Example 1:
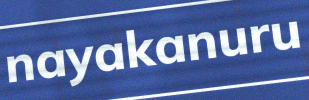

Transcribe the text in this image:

nayakanuru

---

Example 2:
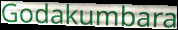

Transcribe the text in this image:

Godakumbara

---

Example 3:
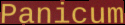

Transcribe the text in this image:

Panicum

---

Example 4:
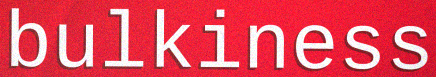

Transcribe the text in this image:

bulkiness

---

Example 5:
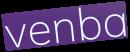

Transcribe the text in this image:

venba